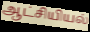
ஆட்சியியல்